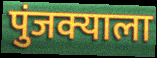
पुंजक्याला